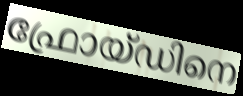
ഫ്രോയ്ഡിനെ